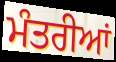
ਮੰਤਰੀਆਂ